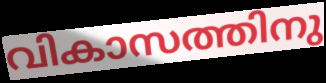
വികാസത്തിനു